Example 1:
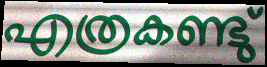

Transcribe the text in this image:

എത്രകണ്ടു്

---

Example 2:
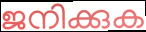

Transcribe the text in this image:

ജനിക്കുക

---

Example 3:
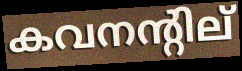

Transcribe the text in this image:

കവനന്റില്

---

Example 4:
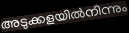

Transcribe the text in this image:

അടുക്കളയിൽനിന്നും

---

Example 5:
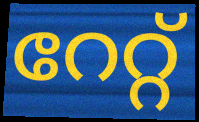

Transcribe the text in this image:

റേറ്റ്